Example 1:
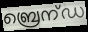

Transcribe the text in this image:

ബ്രെന്ഡ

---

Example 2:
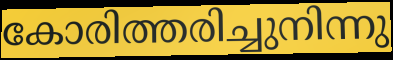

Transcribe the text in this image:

കോരിത്തരിച്ചുനിന്നു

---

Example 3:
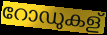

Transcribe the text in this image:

റോഡുകള്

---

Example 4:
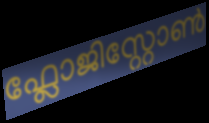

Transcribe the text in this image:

ഫ്ലോജിസ്റ്റോൺ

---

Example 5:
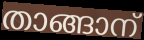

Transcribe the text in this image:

താങ്ങാന്